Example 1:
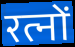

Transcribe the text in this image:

रत्‍नों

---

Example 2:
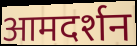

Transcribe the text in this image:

आमदर्शन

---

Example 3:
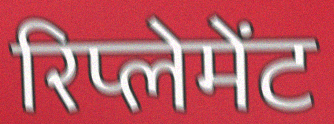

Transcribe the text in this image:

रिप्लेमेंट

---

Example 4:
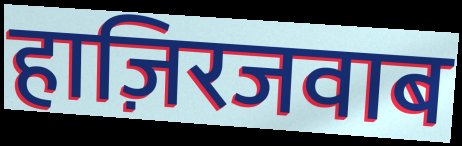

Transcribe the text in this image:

हाज़िरजवाब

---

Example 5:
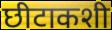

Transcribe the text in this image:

छीटाकशी